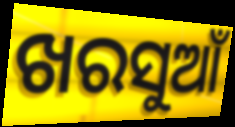
ଖରସୁଆଁ